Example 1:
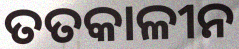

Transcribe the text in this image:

ତତକାଳୀନ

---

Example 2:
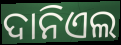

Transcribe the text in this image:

ଦାନିଏଲ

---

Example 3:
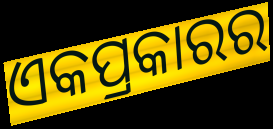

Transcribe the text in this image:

ଏକପ୍ରକାରର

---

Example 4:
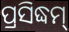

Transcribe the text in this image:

ପ୍ରସିଦ୍ଧମ୍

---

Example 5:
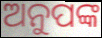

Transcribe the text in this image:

ଅନୁପଙ୍କ